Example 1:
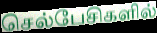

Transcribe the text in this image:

செல்பேசிகளில்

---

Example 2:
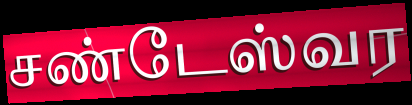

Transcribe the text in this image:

சண்டேஸ்வர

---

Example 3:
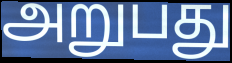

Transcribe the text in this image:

அறுபது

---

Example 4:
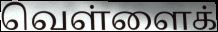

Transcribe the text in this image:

வெள்ளைக்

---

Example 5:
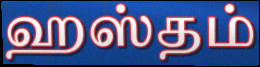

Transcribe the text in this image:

ஹஸ்தம்